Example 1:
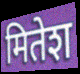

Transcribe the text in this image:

मितेश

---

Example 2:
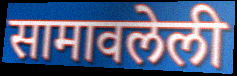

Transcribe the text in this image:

सामावलेली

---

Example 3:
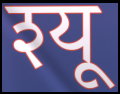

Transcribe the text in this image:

श्यू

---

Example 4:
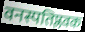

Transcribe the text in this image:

वनस्पतिप्लवक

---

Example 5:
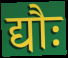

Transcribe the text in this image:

द्यौः